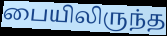
பையிலிருந்த